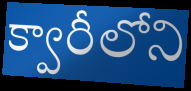
క్వారీలోని